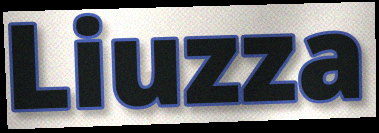
Liuzza